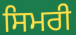
ਸਿਮਰੀ